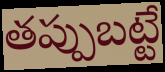
తప్పుబట్టే